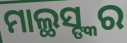
ମାଲ୍ଥସ୍ଙ୍କର